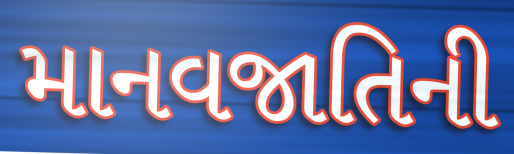
માનવજાતિની